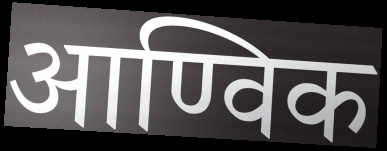
आण्विक